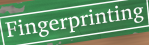
Fingerprinting